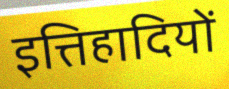
इत्तिहादियों